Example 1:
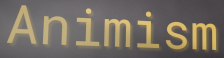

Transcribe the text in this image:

Animism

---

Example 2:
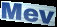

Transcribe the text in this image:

Mev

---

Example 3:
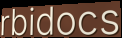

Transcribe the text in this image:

rbidocs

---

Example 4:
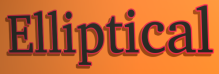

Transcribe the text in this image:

Elliptical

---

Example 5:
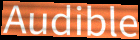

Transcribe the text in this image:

Audible